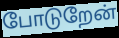
போடுறேன்